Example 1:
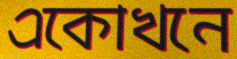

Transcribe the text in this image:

একোখনে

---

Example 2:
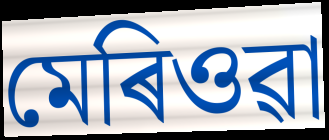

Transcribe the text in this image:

মেৰিওৱা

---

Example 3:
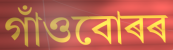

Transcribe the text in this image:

গাঁওবোৰৰ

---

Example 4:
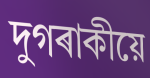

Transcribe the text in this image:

দুগৰাকীয়ে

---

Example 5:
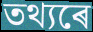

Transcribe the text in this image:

তথ্যৰে